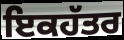
ਇਕਹੱਤਰ